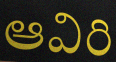
ఆవిరి